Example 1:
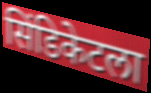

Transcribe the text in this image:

सिंडिकेटला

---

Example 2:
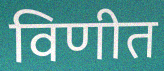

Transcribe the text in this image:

विणीत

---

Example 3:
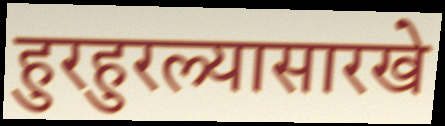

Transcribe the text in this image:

हुरहुरल्यासारखे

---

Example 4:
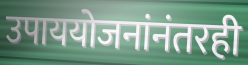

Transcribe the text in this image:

उपाययोजनांनंतरही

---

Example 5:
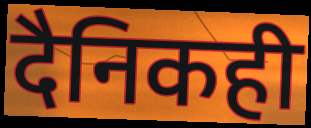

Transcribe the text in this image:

दैनिकही